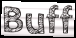
Buff